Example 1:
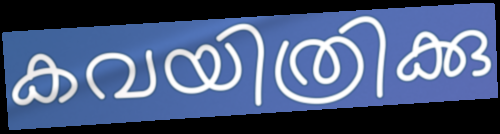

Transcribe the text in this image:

കവയിത്രിക്കു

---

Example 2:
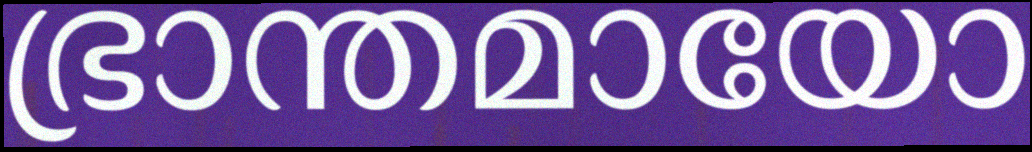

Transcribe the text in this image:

ഭ്രാന്തമായോ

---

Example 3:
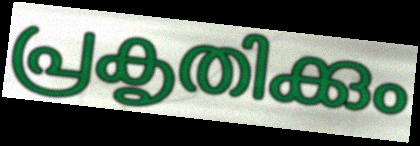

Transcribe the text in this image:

പ്രകൃതിക്കും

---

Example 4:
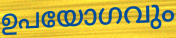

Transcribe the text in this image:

ഉപയോഗവും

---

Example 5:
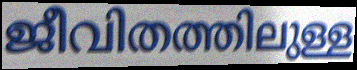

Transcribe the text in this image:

ജീവിതത്തിലുള്ള